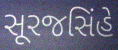
સૂરજસિંહે